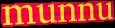
munnu